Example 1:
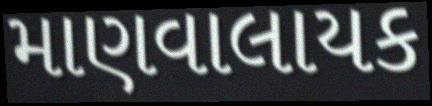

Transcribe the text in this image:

માણવાલાયક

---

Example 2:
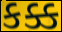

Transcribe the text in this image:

કક્ક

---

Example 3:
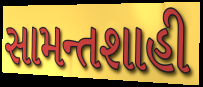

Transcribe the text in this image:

સામન્તશાહી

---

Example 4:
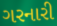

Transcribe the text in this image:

ગરનારી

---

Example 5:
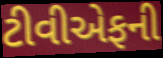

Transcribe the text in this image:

ટીવીએફની